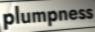
plumpness